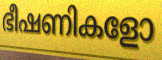
ഭീഷണികളോ